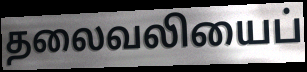
தலைவலியைப்